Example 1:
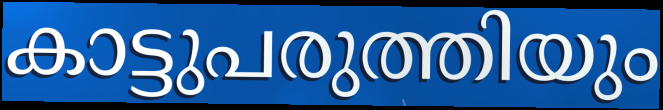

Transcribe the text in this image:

കാട്ടുപരുത്തിയും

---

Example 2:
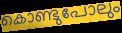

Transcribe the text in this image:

കൊണ്ടുപോലും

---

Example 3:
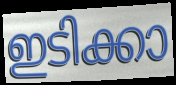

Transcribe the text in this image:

ഇടിക്കാ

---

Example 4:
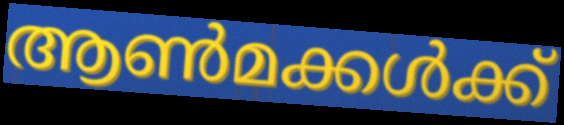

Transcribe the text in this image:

ആൺമക്കൾക്ക്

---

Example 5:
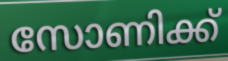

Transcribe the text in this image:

സോണിക്ക്